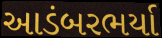
આડંબરભર્યા